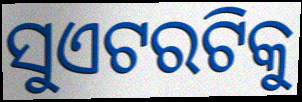
ସୁଏଟରଟିକୁ